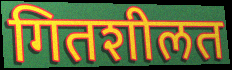
गितशीलत